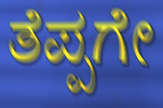
ತೆಪ್ಪಗೇ